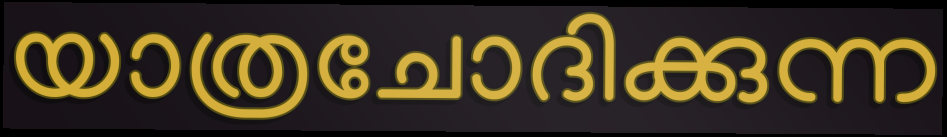
യാത്രചോദിക്കുന്ന